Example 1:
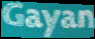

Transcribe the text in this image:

Gayan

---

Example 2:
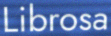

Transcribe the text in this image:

Librosa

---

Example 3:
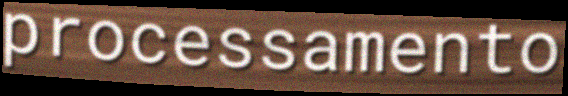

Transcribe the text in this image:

processamento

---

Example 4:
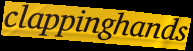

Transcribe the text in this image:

clappinghands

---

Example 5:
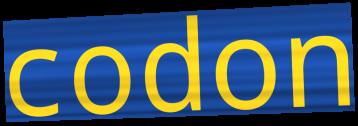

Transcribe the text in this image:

codon